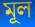
মূল